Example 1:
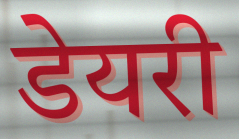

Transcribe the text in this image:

डेयरी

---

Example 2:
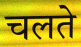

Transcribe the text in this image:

चलते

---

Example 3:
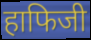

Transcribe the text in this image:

हाफिजी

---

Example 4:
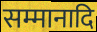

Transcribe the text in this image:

सम्मानादि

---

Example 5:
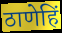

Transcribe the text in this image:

ठाणेहिं